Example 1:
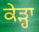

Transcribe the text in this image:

ਕੇੜ੍ਹਾ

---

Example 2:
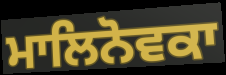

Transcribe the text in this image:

ਮਾਲਿਨੋਵਕਾ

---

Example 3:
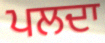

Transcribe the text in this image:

ਪਲਦਾ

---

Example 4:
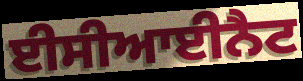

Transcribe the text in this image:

ਈਸੀਆਈਨੈਟ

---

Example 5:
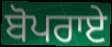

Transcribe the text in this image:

ਬੋਪਰਾਏ